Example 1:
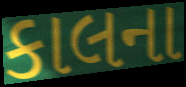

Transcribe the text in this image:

કાલના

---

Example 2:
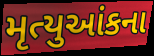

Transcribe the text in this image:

મૃત્યુઆંકના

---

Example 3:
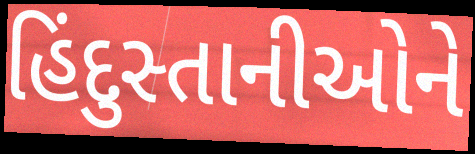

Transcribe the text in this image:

હિંદુસ્તાનીઓને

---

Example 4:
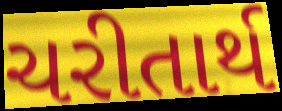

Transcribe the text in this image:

ચરીતાર્થ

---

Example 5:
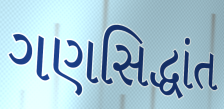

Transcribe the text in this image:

ગણસિદ્ધાંત